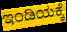
ಇಂಡಿಯಕ್ಕೆ